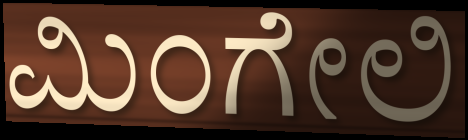
ಮಿಂಗೇಲಿ